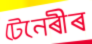
টেনেৰীৰ